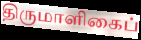
திருமாளிகைப்